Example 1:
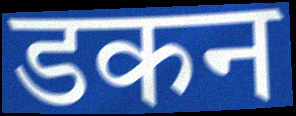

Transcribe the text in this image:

डकन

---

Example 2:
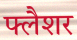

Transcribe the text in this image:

फ्लैशर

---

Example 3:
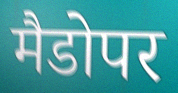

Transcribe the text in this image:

मैडोपर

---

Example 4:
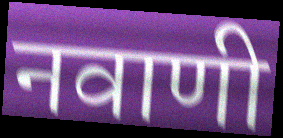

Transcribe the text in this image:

नवाणी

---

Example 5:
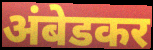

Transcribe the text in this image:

अंबेडकर